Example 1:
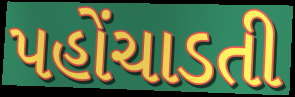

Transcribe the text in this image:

પહોંચાડતી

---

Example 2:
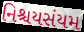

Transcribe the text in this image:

નિશ્ચયસંયમ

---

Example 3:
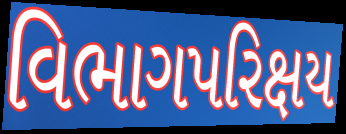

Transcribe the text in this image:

વિભાગપરિક્ષય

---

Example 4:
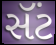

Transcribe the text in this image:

સૅંટ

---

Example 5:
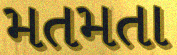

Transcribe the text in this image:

મતમતા